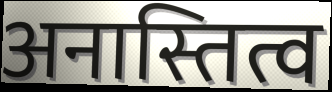
अनास्तित्व